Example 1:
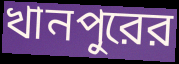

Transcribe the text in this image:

খানপুরের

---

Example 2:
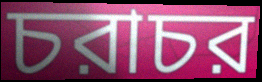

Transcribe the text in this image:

চরাচর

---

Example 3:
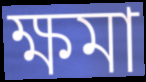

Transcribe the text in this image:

ক্ষমা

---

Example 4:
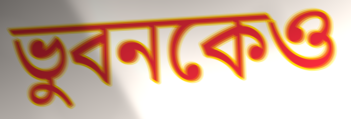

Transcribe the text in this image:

ভুবনকেও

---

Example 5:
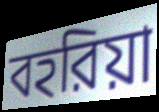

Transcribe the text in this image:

বহরিয়া